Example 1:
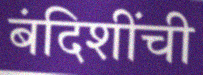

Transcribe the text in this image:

बंदिशींची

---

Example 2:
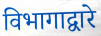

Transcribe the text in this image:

विभागाद्वारे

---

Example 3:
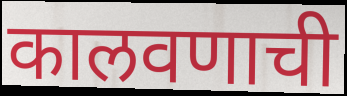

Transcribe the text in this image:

कालवणाची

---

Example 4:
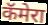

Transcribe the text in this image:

कॅमेरा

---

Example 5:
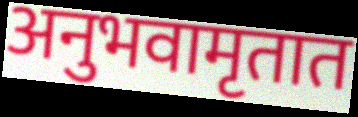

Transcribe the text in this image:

अनुभवामृतात